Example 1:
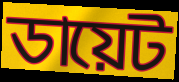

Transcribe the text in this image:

ডায়েট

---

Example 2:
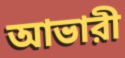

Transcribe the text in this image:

আভারী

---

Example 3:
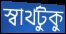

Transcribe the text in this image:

স্বার্থটুকু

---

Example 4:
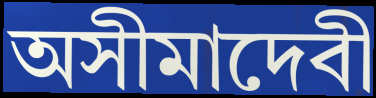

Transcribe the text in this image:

অসীমাদেবী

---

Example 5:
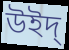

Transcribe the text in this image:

উইদ্